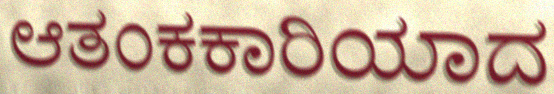
ಆತಂಕಕಾರಿಯಾದ